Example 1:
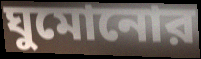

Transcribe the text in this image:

ঘুমোনোর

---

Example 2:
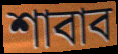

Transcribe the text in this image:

শাবাব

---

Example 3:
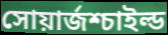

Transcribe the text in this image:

সোয়ার্জশ্চাইল্ড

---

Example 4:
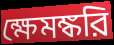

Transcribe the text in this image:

ক্ষেমঙ্করি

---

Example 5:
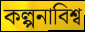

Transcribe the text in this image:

কল্পনাবিশ্ব